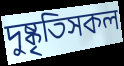
দুষ্কৃতিসকল